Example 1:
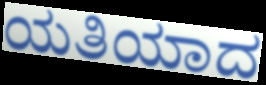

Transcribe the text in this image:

ಯತಿಯಾದ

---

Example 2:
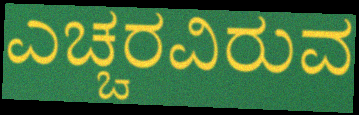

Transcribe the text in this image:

ಎಚ್ಚರವಿರುವ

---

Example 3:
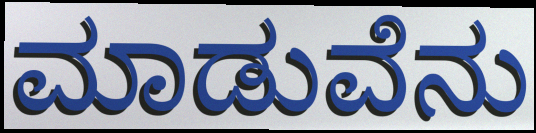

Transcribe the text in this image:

ಮಾಡುವೆನು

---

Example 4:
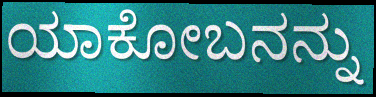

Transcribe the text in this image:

ಯಾಕೋಬನನ್ನು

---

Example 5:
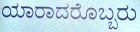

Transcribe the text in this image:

ಯಾರಾದರೊಬ್ಬರು